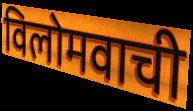
विलोमवाची